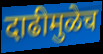
दाढीमुळेच